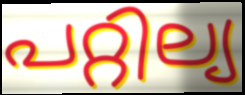
പറ്റില്യ